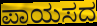
ಪಾಯಸದ